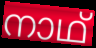
നാഥ്